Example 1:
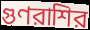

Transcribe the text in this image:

গুণরাশির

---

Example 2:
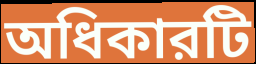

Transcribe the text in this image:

অধিকারটি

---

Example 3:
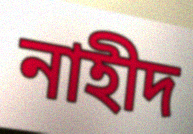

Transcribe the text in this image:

নাহীদ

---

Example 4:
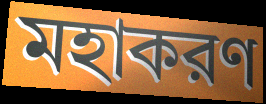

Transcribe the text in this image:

মহাকরণ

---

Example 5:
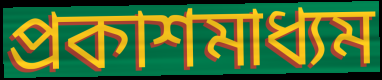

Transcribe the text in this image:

প্রকাশমাধ্যম